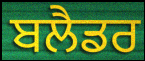
ਬਲੈਡਰ